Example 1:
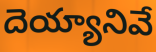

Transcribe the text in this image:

దెయ్యానివే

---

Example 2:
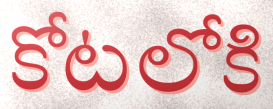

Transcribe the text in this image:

కోటలోకి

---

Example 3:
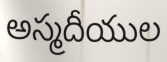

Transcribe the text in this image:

అస్మదీయుల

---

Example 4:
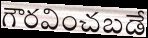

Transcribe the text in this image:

గౌరవించబడే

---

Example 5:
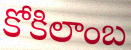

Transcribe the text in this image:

కోకిలాంబ